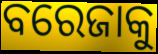
ବରେଜାକୁ